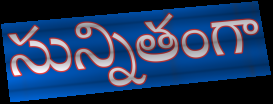
సున్నితంగా